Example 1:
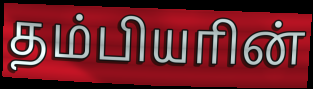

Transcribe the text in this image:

தம்பியரின்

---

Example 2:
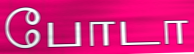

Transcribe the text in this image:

போடா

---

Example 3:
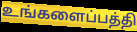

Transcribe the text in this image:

உங்களைப்பத்தி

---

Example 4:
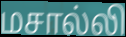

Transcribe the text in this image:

மசால்லி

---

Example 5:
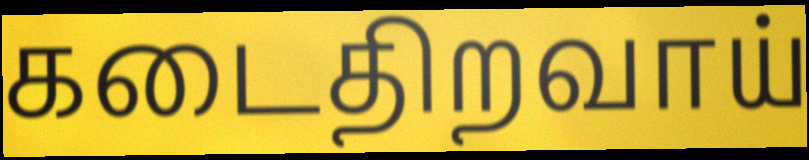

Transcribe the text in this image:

கடைதிறவாய்